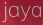
jaya